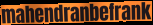
mahendranbefrank